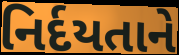
નિર્દયતાને